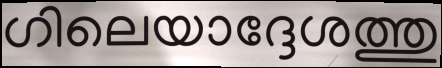
ഗിലെയാദ്ദേശത്തു